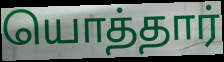
யொத்தார்